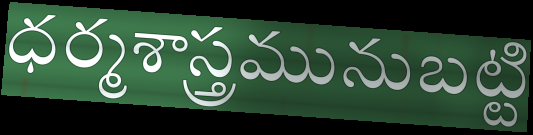
ధర్మశాస్త్రమునుబట్టి